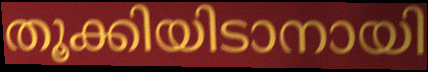
തൂക്കിയിടാനായി